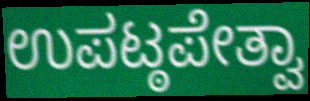
ಉಪಟ್ಠಪೇತ್ವಾ